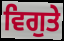
ਵਿਗੁਤੇ